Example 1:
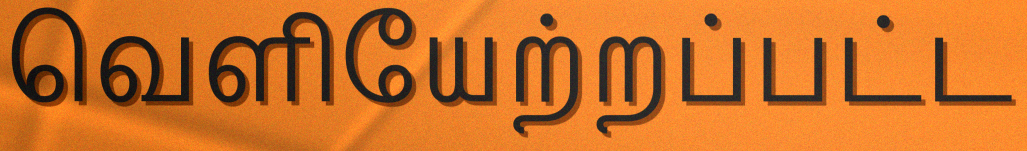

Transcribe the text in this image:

வெளியேற்றப்பட்ட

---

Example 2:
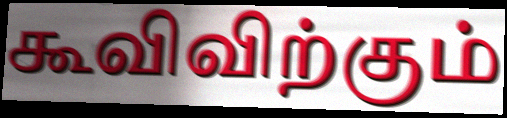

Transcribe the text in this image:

கூவிவிற்கும்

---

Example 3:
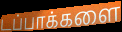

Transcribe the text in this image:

டப்பாக்களை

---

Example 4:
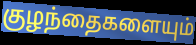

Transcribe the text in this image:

குழந்தைகளையும்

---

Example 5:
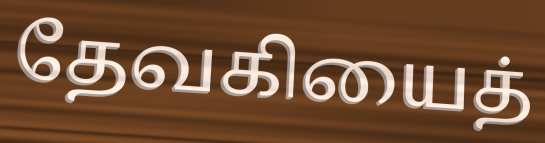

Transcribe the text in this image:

தேவகியைத்